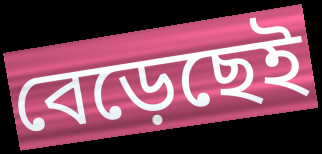
বেড়েছেই